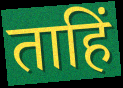
ताहिं